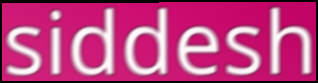
siddesh